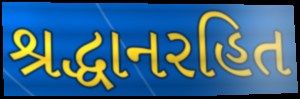
શ્રદ્ધાનરહિત